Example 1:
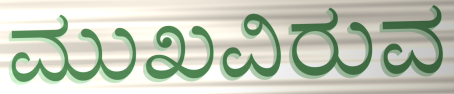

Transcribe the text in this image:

ಮುಖವಿರುವ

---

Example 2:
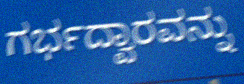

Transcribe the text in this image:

ಗರ್ಭದ್ವಾರವನ್ನು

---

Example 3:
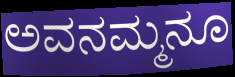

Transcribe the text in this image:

ಅವನಮ್ಮನೂ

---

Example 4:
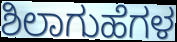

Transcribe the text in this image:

ಶಿಲಾಗುಹೆಗಳ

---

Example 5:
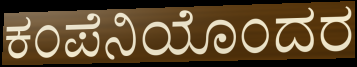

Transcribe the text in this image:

ಕಂಪೆನಿಯೊಂದರ